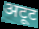
अटूट